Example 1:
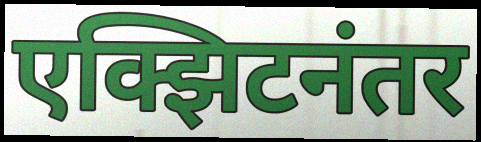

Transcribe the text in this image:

एक्झिटनंतर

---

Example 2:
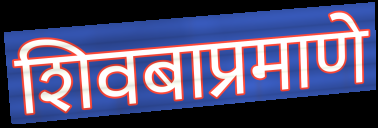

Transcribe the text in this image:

शिवबाप्रमाणे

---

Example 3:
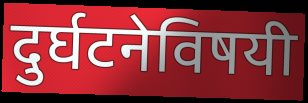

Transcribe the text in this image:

दुर्घटनेविषयी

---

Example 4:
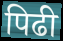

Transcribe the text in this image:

पिढी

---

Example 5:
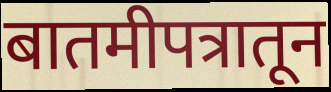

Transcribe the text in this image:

बातमीपत्रातून